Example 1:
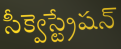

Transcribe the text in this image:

సీక్వెస్ట్రేషన్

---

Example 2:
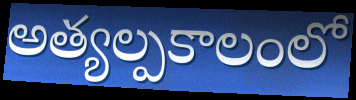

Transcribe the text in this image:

అత్యల్పకాలంలో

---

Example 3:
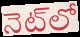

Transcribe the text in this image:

నెట్‌లో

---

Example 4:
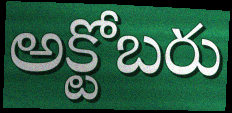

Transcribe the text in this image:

అక్టోబరు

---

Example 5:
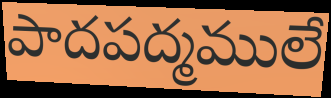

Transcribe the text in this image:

పాదపద్మములే